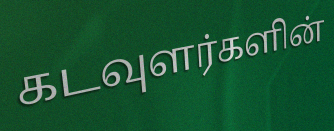
கடவுளர்களின்